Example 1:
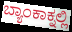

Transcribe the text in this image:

ಬ್ಯಾಂಕಾಕ್ನಲ್ಲಿ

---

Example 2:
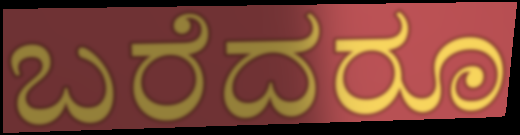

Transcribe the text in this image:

ಬರೆದರೂ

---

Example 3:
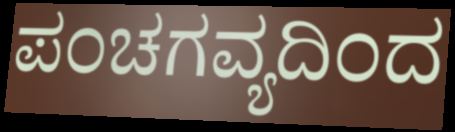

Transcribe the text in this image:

ಪಂಚಗವ್ಯದಿಂದ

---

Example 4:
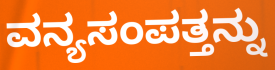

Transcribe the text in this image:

ವನ್ಯಸಂಪತ್ತನ್ನು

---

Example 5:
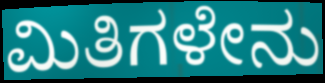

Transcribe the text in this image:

ಮಿತಿಗಳೇನು